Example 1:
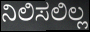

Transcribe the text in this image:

ನಿಲಿಸಲಿಲ್ಲ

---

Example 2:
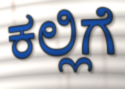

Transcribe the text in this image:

ಕಲ್ಲಿಗೆ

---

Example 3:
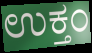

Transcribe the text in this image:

ಉಕ್ತಂ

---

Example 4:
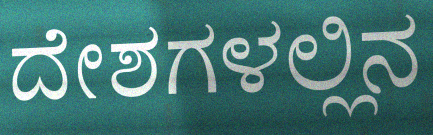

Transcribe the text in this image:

ದೇಶಗಳಲ್ಲಿನ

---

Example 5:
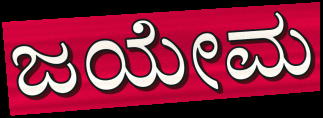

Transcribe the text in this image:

ಜಯೇಮ